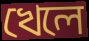
খেলে